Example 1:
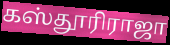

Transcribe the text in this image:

கஸ்தூரிராஜா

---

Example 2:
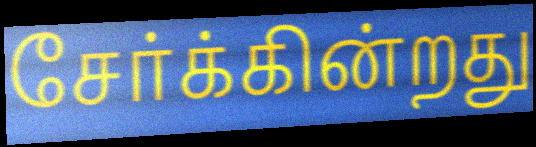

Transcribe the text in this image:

சேர்க்கின்றது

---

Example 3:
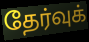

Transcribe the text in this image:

தேர்வுக்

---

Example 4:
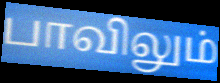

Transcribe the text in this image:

பாவிலும்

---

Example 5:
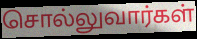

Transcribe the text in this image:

சொல்லுவார்கள்